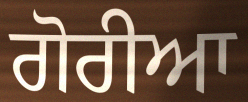
ਗੋਰੀਆ